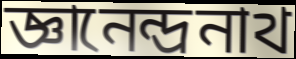
জ্ঞানেন্দ্রনাথ